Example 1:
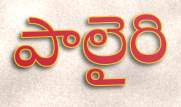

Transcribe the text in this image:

పాలైరి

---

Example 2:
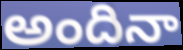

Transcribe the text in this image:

అందినా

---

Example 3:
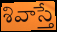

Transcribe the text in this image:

శివాస్తే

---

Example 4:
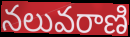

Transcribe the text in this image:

నలువరాణి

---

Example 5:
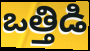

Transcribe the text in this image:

ఒత్తిడి